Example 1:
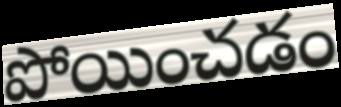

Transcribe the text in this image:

పోయించడం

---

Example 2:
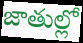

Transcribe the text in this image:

జాతుల్లో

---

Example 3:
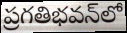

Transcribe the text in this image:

ప్రగతిభవన్‌లో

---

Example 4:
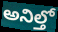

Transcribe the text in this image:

అనిల్తో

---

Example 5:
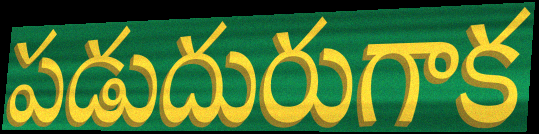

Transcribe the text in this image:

పడుదురుగాక